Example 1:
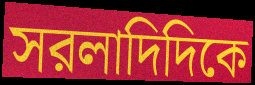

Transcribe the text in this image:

সরলাদিদিকে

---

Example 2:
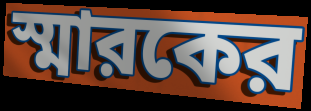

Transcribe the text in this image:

স্মারকের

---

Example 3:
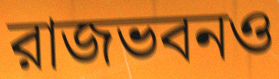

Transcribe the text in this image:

রাজভবনও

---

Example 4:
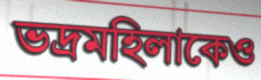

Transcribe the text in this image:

ভদ্রমহিলাকেও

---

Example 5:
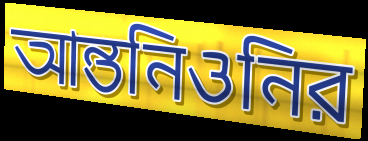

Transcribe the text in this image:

আন্তনিওনির